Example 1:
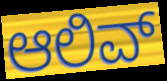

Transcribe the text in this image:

ಆಲಿವ್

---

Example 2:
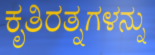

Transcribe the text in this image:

ಕೃತಿರತ್ನಗಳನ್ನು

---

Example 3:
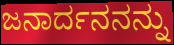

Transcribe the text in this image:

ಜನಾರ್ದನನನ್ನು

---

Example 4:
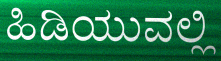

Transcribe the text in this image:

ಹಿಡಿಯುವಲ್ಲಿ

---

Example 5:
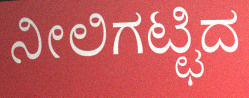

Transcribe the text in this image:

ನೀಲಿಗಟ್ಟಿದ